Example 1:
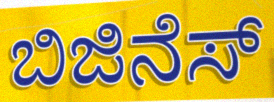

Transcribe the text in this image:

ಬಿಜಿನೆಸ್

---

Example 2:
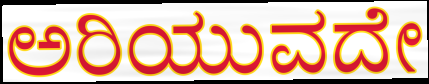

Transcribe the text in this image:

ಅರಿಯುವದೇ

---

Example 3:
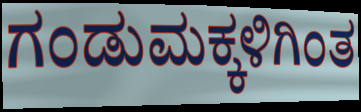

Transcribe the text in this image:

ಗಂಡುಮಕ್ಕಳಿಗಿಂತ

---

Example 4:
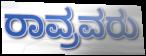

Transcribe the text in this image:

ರಾವ್ರವರು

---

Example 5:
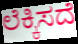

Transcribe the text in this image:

ಲೆಕ್ಕಿಸದೆ